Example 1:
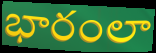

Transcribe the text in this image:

భారంలా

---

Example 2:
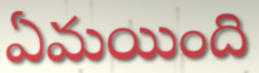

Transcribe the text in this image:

ఏమయింది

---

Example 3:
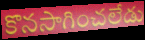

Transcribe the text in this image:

కొనసాగించలేడు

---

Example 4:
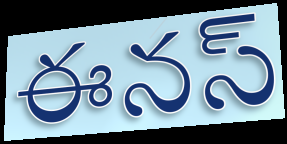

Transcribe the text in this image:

ఈనస్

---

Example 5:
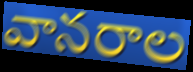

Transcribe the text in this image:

వానరాల